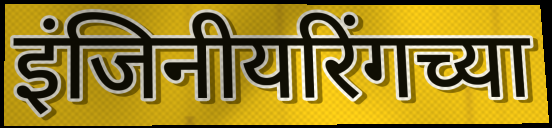
इंजिनीयरिंगच्या